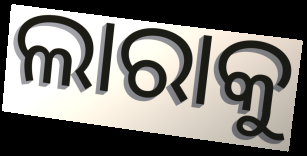
ଲାରାକୁ